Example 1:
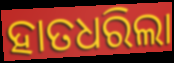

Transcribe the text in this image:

ହାତଧରିଲା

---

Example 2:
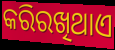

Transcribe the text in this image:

କରିରଖିଥାଏ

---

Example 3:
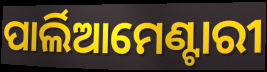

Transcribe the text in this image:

ପାର୍ଲିଆମେଣ୍ଟାରୀ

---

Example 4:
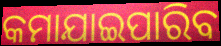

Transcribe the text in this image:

କମାଯାଇପାରିବ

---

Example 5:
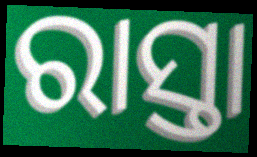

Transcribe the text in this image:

ରାସ୍ତା